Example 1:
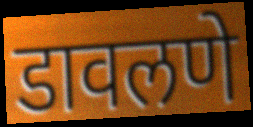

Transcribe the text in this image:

डावलणे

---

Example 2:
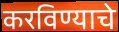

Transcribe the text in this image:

करविण्याचे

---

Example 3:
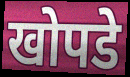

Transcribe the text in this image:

खोपडे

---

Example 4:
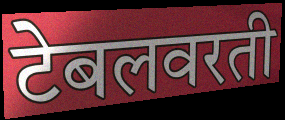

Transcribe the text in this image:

टेबलवरती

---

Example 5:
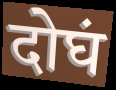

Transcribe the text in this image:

दोघं